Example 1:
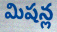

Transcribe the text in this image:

మిషన్ల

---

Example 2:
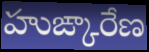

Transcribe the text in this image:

హుఙ్కారేణ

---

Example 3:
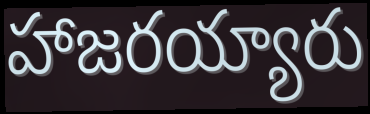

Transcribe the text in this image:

హాజరయ్యారు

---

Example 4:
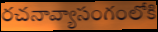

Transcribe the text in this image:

రచనావ్యాసంగంలోకి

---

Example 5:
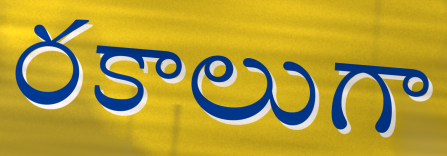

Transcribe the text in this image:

రకాలుగా